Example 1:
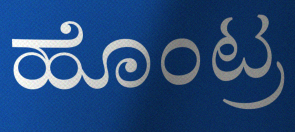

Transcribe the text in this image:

ಹೊಂಟ್ರ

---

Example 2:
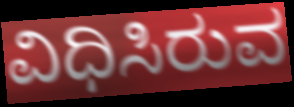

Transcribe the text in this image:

ವಿಧಿಸಿರುವ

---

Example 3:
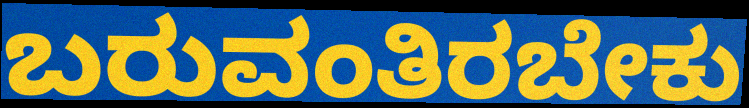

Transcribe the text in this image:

ಬರುವಂತಿರಬೇಕು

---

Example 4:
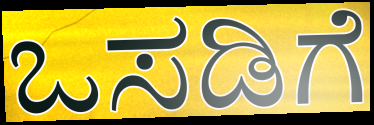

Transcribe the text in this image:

ಒಸಡಿಗೆ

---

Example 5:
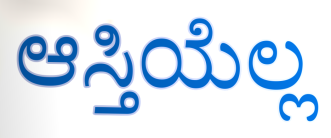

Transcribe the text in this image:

ಆಸ್ತಿಯೆಲ್ಲ